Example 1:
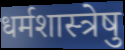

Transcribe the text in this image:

धर्मशास्त्रेषु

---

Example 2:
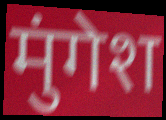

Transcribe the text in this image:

मुंगेश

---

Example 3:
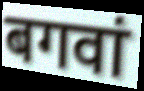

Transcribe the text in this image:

बगवां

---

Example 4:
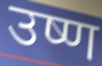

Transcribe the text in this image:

उष्ण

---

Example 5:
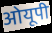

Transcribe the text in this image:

ओयूपी